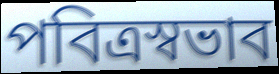
পবিত্রস্বভাব